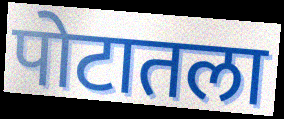
पोटातला